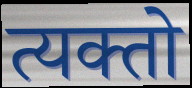
त्यक्तो